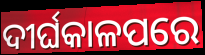
ଦୀର୍ଘକାଳପରେ